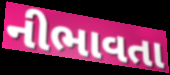
નીભાવતા